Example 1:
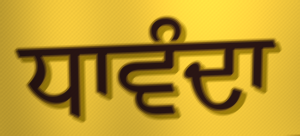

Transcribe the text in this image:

ਧਾਵੰਦਾ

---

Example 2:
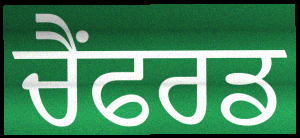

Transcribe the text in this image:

ਚੈਂਫਰਡ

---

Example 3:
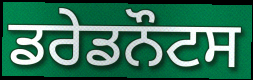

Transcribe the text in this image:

ਡਰੇਡਨੌਟਸ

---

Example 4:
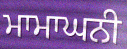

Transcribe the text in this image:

ਮਾਮਾਘਨੀ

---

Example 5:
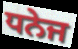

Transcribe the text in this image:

ਧਨੇਜ